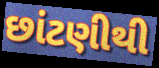
છાંટણીથી